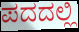
ಪದದಲ್ಲಿ